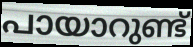
പായാറുണ്ട്